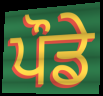
ਪੌਡੇ